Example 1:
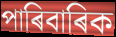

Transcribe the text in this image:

পাৰিবাৰিক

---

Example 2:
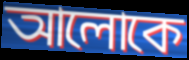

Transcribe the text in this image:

আলোকে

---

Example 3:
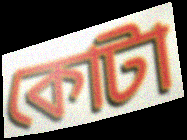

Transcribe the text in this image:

কোটা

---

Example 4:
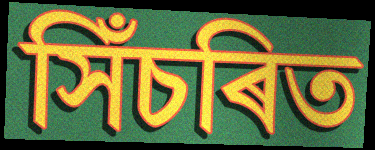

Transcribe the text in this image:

সিঁচৰিত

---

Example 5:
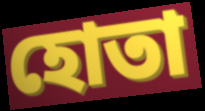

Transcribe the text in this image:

হোতা